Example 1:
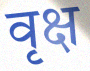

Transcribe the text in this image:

वृक्ष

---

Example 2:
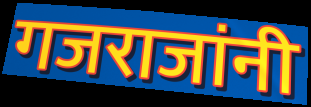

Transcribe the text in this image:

गजराजांनी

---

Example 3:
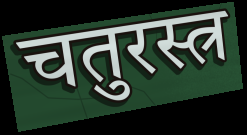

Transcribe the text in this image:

चतुरस्त्र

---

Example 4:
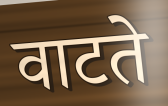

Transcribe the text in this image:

वाटते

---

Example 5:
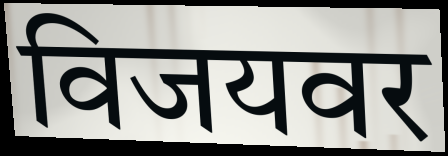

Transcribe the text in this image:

विजयवर